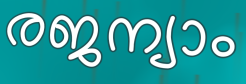
രജന്യാം